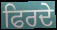
ਫਿਰਦੇ